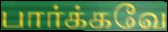
பார்க்கவே